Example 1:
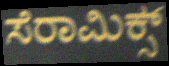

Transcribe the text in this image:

ಸೆರಾಮಿಕ್ಸ್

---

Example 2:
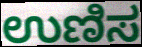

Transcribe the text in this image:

ಉಣಿಸ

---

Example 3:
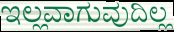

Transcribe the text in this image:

ಇಲ್ಲವಾಗುವುದಿಲ್ಲ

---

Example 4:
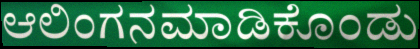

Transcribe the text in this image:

ಆಲಿಂಗನಮಾಡಿಕೊಂಡು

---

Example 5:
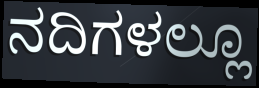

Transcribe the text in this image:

ನದಿಗಳಲ್ಲೂ